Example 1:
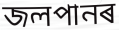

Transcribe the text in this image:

জলপানৰ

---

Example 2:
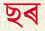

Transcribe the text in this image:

ছৰ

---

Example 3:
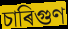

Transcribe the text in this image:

চাৰিগুণ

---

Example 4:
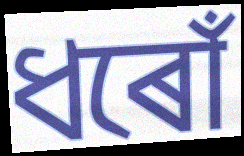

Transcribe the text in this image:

ধৰোঁ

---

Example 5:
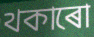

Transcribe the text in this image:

থকাৰো